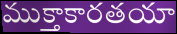
ముక్తాకారతయా